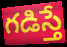
గడిస్తే